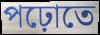
পঢ়োতে